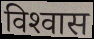
विश्‍वास